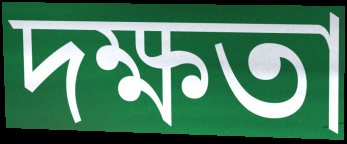
দক্ষতা